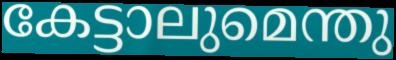
കേട്ടാലുമെന്തു